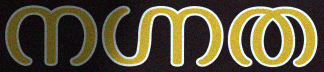
നഗ്നത